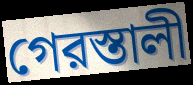
গেরস্তালী